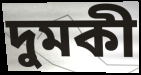
দুমকী